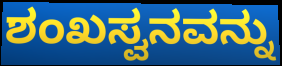
ಶಂಖಸ್ವನವನ್ನು